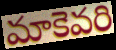
మాకెవరి